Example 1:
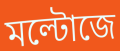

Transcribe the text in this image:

মল্টোজে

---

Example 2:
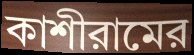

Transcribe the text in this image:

কাশীরামের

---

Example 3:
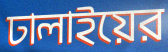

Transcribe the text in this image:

ঢালাইয়ের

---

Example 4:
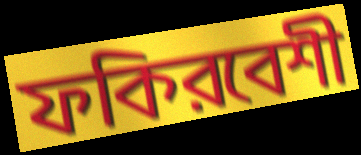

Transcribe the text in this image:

ফকিরবেশী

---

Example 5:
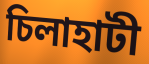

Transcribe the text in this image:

চিলাহাটী